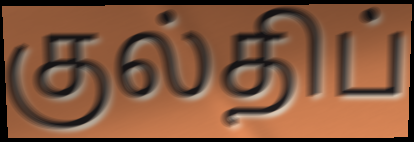
குல்திப்